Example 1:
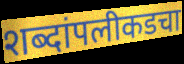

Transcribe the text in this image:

शब्दांपलीकडचा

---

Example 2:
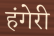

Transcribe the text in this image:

हंगेरी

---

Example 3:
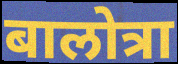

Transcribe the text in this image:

बालोत्रा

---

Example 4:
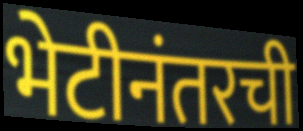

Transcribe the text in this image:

भेटीनंतरची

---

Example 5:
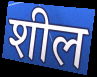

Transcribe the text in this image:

शील